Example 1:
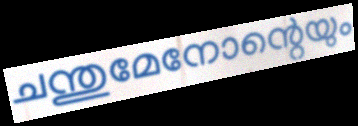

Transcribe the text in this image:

ചന്തുമേനോന്റെയും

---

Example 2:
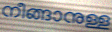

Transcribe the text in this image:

നീങ്ങാനുള്ള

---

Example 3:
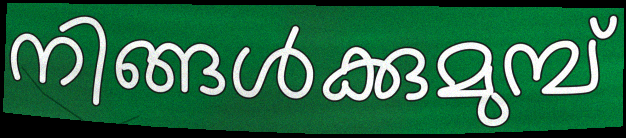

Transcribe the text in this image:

നിങ്ങൾക്കുമുമ്പ്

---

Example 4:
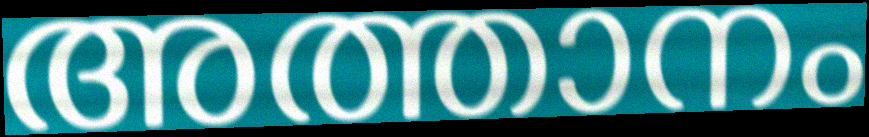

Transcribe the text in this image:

അത്താനം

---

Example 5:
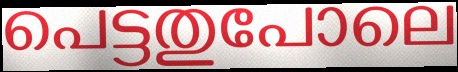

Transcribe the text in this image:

പെട്ടതുപോലെ